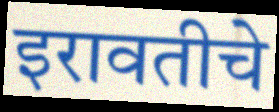
इरावतीचे